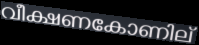
വീക്ഷണകോണില്